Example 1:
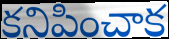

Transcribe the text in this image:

కనిపించాక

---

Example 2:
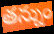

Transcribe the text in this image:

తన్నుం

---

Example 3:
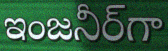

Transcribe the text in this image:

ఇంజనీర్‌గా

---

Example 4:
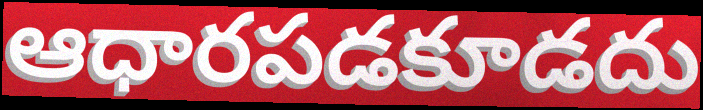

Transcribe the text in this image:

ఆధారపడకూడదు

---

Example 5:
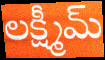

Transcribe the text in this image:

లక్ష్మీమ్